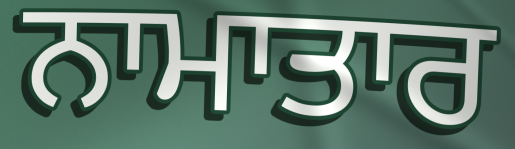
ਨਾਮਾਤਾਰ